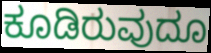
ಕೂಡಿರುವುದೂ